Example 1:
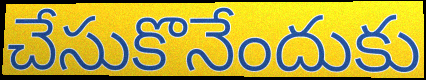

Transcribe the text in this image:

చేసుకొనేందుకు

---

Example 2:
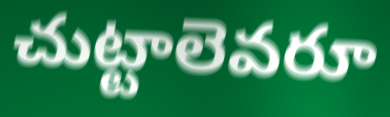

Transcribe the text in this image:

చుట్టాలెవరూ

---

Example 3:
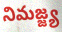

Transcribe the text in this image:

నిమజ్జ్య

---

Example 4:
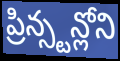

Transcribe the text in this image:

ప్రిన్స్టన్లోని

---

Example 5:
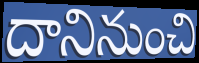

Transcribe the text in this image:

దానినుంచి